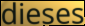
dieses